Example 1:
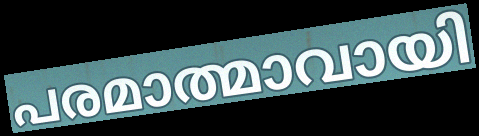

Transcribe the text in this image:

പരമാത്മാവായി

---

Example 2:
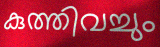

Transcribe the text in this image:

കുത്തിവച്ചും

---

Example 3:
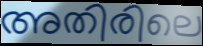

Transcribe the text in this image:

അതിരിലെ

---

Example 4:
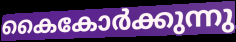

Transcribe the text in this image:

കൈകോർക്കുന്നു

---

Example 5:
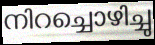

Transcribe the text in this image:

നിറച്ചൊഴിച്ചു